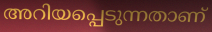
അറിയപ്പെടുന്നതാണ്